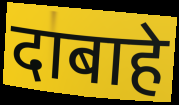
दाबाहे